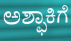
ಅಶ್ಫಾಕಿಗೆ